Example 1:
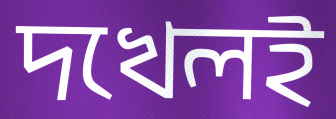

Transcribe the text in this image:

দখেলই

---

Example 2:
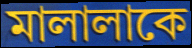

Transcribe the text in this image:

মালালাকে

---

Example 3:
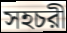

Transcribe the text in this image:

সহচরী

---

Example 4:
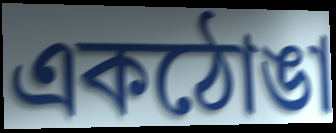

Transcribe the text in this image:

একঠোঙা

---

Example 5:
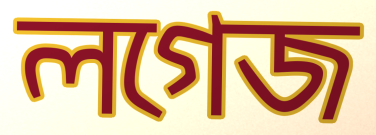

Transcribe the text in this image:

লগেজ